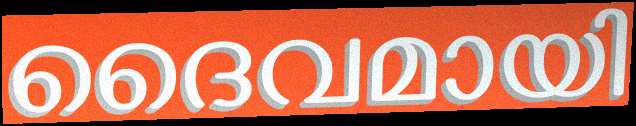
ദൈവമായി